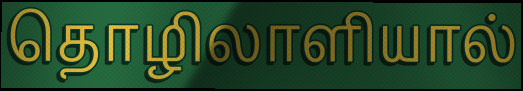
தொழிலாளியால்